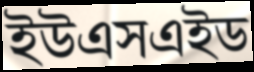
ইউএসএইড